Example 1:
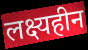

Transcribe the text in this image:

लक्ष्यहीन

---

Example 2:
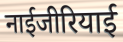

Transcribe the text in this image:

नाईजीरियाई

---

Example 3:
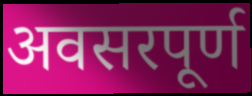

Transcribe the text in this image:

अवसरपूर्ण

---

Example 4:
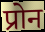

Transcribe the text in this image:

प्रोन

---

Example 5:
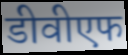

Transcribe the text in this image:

डीवीएफ